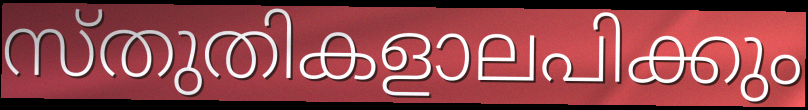
സ്തുതികളാലപിക്കും